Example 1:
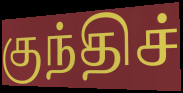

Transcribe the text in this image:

குந்திச்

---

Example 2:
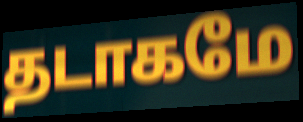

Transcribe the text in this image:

தடாகமே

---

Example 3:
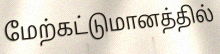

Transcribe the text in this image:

மேற்கட்டுமானத்தில்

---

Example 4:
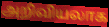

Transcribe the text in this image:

அறிவியலாக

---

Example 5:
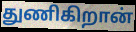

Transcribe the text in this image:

துணிகிறான்